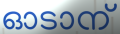
ഓടാന്